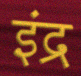
इंद्र